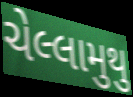
ચેલ્લામુથુ